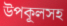
উপকূলসহ